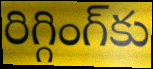
రిగ్గింగ్‌కు